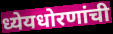
ध्येयधोरणांची